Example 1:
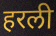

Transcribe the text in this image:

हरली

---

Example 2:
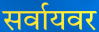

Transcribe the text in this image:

सर्वायवर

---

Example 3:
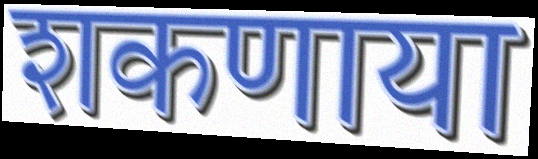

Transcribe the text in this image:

शकणाया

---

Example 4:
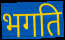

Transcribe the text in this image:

भगति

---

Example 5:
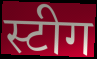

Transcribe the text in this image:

स्टीग